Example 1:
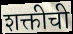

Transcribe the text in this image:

शक्तीची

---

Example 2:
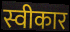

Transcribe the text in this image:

स्वीकार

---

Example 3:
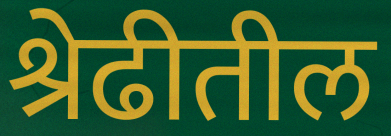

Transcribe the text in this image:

श्रेढीतील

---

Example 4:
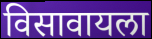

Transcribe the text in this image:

विसावायला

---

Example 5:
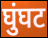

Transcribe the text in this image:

घुंघट